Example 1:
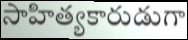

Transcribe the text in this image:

సాహిత్యకారుడుగా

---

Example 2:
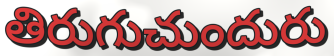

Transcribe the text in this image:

తిరుగుచుందురు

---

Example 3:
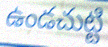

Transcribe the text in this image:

ఉండచుట్టి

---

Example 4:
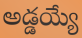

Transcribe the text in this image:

అడ్డయ్యే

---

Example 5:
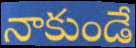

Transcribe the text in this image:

నాకుండే